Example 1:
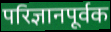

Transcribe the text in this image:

परिज्ञानपूर्वक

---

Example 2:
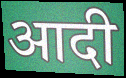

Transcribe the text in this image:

आदी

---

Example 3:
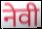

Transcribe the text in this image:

नेवी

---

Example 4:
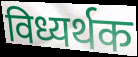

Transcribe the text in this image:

विध्यर्थक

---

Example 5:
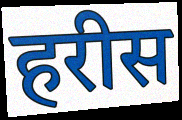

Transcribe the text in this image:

हरीस